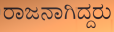
ರಾಜನಾಗಿದ್ದರು